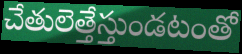
చేతులెత్తేస్తుండటంతో